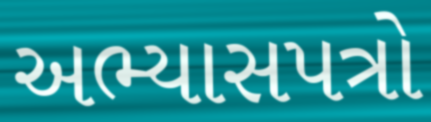
અભ્યાસપત્રો